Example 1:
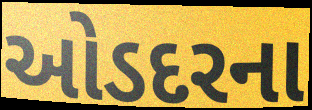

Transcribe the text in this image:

ઓડદરના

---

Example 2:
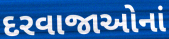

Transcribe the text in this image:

દરવાજાઓનાં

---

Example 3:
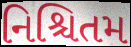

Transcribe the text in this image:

નિશ્ચિતમ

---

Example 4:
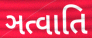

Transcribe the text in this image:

ઞત્વાતિ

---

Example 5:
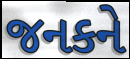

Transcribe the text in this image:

જનકને